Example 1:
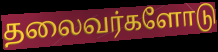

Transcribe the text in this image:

தலைவர்களோடு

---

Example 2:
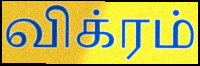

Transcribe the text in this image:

விக்ரம்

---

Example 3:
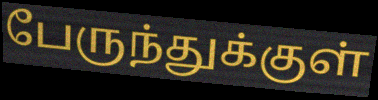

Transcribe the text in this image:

பேருந்துக்குள்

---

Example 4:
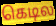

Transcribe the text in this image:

கெடில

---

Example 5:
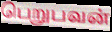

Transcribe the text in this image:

பெறுபவன்